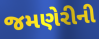
જમણેરીની